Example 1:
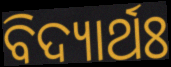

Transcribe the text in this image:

ବିଦ୍ୟାର୍ଥଃ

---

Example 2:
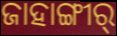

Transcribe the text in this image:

ଜାହାଙ୍ଗୀର୍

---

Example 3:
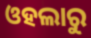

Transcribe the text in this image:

ଓହଲାରୁ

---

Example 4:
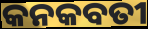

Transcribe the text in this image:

କନକବତୀ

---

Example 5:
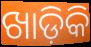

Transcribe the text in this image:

ଖାଡ଼ିକି